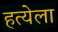
हत्येला